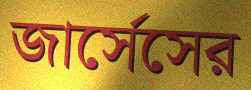
জার্সেসের